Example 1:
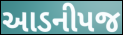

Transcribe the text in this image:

આડનીપજ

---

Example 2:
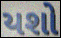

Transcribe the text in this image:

યશો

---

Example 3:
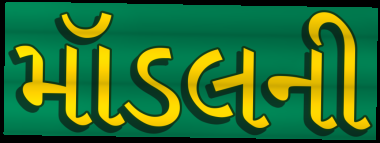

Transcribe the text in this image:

મૉડલની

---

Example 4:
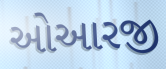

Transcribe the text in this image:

ઓઆરજી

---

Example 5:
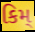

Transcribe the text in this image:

કિમ્